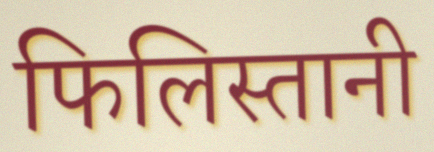
फिलिस्तानी